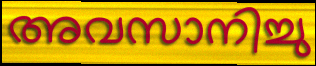
അവസാനിച്ചു